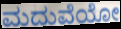
ಮದುವೆಯೋ